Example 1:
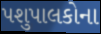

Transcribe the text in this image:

પશુપાલકોના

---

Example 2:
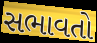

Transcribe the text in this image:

સભાવતો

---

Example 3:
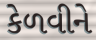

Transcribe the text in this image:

કેળવીને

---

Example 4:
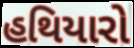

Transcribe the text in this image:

હથિયારો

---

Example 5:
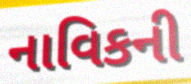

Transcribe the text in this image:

નાવિકની